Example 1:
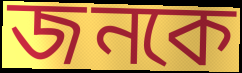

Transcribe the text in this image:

জনকে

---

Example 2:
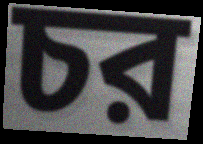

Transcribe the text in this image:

চর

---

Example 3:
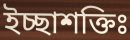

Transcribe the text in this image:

ইচ্ছাশক্তিঃ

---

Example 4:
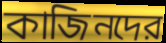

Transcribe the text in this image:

কাজিনদের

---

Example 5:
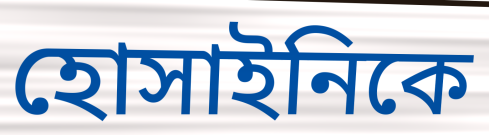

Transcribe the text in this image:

হোসাইনিকে